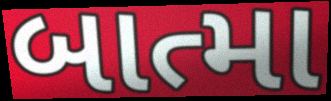
બાત્મા